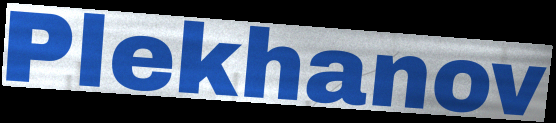
Plekhanov